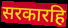
सरकारहि